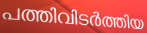
പത്തിവിടർത്തിയ